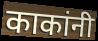
काकांनी